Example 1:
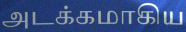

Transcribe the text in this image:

அடக்கமாகிய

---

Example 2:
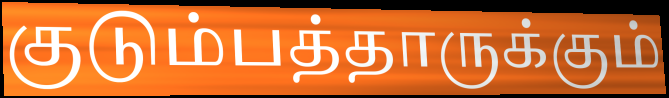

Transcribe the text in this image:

குடும்பத்தாருக்கும்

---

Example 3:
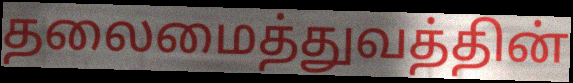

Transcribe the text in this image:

தலைமைத்துவத்தின்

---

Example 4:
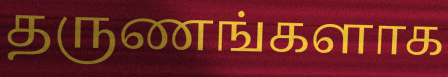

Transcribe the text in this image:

தருணங்களாக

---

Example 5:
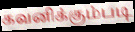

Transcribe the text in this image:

கவனிக்கும்படி